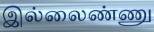
இல்லைண்ணு